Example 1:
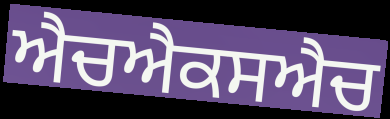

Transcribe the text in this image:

ਐਚਐਕਸਐਚ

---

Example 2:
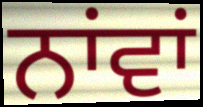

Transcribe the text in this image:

ਨਾਂਵਾਂ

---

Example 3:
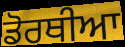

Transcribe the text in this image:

ਡੋਰਥੀਆ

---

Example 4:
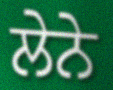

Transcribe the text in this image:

ਲੇਨੇ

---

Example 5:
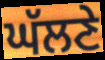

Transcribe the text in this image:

ਘੱਲਣੇ